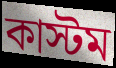
কাস্টম